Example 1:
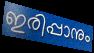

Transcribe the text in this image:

ഇരിപ്പാനും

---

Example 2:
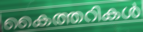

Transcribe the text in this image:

കൈത്തറികൾ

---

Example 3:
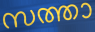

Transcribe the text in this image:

സത്താ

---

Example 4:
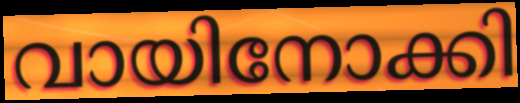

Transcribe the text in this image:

വായിനോക്കി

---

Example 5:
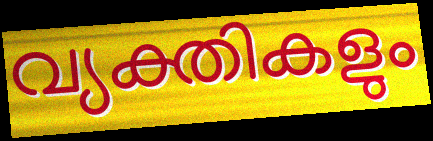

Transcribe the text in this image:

വ്യക്തികളും